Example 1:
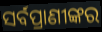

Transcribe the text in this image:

ସର୍ବପ୍ରାଣୀଙ୍କର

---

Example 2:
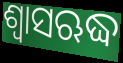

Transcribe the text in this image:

ଶ୍ୱାସଋଦ୍ଧ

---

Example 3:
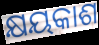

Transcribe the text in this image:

କ୍ଷୟକାଶ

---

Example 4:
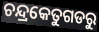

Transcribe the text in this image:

ଚନ୍ଦ୍ରକେତୁଗଡରୁ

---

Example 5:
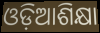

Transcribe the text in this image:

ଓଡ଼ିଆଶିକ୍ଷା